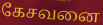
கேசவனை